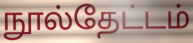
நூல்தேட்டம்